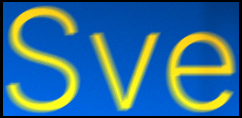
Sve